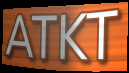
ATKT